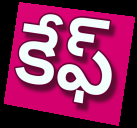
కేఫ్